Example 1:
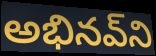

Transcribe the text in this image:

అభినవ్‌ని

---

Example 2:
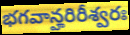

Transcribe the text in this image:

భగవాన్హరిరీశ్వరః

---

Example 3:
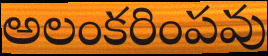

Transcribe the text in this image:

అలంకరింపవు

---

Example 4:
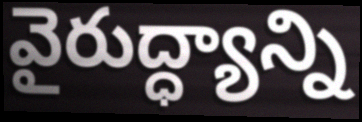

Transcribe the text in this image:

వైరుద్ధ్యాన్ని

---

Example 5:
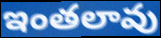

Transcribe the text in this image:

ఇంతలావు